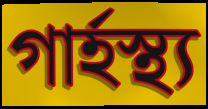
গাৰ্হস্থ্য